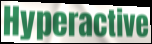
Hyperactive